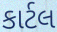
કાર્ટલ